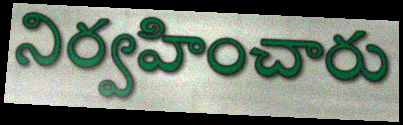
నిర్వహించారు